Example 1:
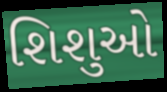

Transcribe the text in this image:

શિશુઓ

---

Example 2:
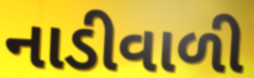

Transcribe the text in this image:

નાડીવાળી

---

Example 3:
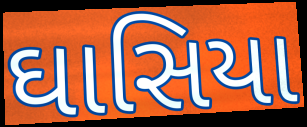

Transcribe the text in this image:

ઘાસિયા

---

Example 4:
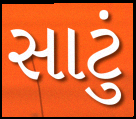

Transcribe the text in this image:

સાટું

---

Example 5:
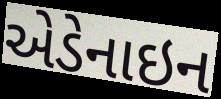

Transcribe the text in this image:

એડેનાઇન